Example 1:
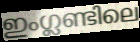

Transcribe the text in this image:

ഇംഗ്ലണ്ടിലെ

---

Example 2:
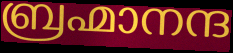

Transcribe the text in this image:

ബ്രഹ്മാനന്ദ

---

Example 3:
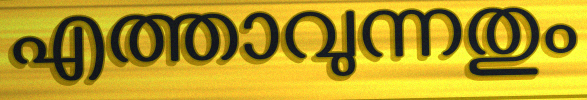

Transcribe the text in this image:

എത്താവുന്നതും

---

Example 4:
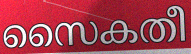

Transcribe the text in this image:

സൈകതീ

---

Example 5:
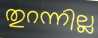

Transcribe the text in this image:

തുറന്നില്ല